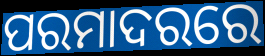
ପରମାଦରରେ